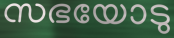
സഭയോടു